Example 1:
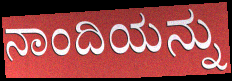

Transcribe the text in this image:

ನಾಂದಿಯನ್ನು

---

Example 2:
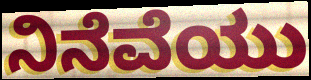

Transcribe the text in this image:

ನಿನೆವೆಯು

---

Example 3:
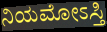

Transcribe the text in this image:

ನಿಯಮೋಽಸ್ತಿ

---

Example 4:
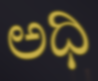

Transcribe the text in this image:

ಅಧಿ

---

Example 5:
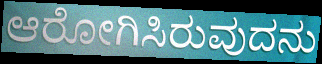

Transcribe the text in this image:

ಆರೋಗಿಸಿರುವುದನು